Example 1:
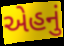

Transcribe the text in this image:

એહનું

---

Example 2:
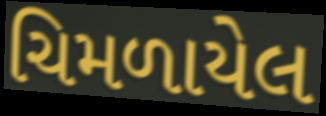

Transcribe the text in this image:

ચિમળાયેલ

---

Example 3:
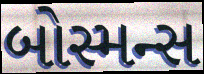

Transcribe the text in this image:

બોસ્મન્સ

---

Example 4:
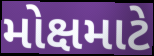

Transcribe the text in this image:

મોક્ષમાટે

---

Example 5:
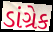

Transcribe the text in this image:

ડાંગ્રેક